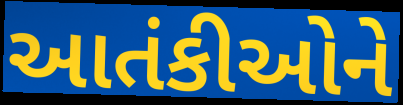
આતંકીઓને